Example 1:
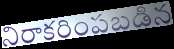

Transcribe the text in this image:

నిరాకరింపబడిన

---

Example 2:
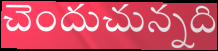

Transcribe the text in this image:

చెందుచున్నది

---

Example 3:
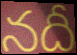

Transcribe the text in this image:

నదీ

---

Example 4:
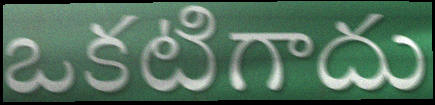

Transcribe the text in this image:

ఒకటిగాదు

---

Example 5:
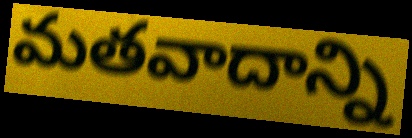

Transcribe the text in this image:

మతవాదాన్ని